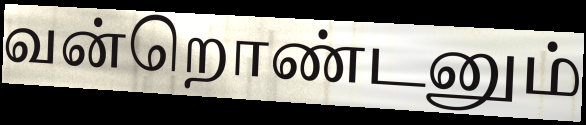
வன்றொண்டனும்